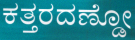
ಕತ್ತರದಣ್ಡೋ